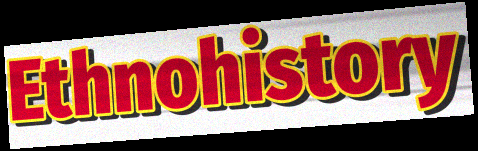
Ethnohistory